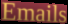
Emails